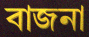
বাজনা